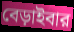
বেড়াইবার